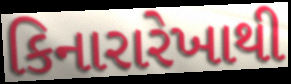
કિનારારેખાથી